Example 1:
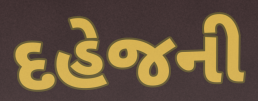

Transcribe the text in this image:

દહેજની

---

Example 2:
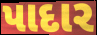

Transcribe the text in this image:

પાદાર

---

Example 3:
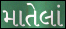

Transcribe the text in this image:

માતેલાં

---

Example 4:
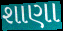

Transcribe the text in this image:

શાણા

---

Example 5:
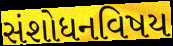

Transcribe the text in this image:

સંશોધનવિષય